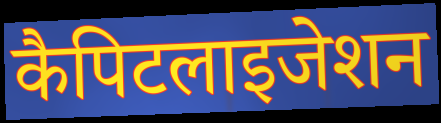
कैपिटलाइजेशन